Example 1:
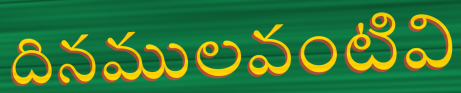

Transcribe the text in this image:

దినములవంటివి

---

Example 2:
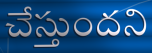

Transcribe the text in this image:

చేస్తుందని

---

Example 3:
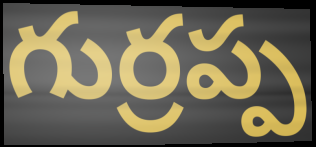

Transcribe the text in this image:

గుర్రప్ప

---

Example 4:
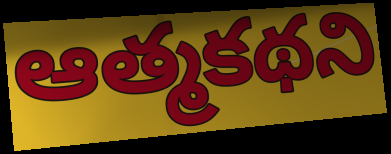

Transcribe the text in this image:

ఆత్మకథని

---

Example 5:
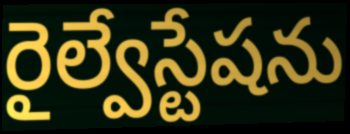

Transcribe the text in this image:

రైల్వేస్టేషను